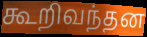
கூறிவந்தன